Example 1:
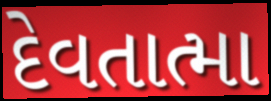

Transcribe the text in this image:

દેવતાત્મા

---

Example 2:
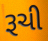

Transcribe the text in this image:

રૂચી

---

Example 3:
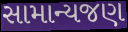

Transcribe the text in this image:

સામાન્યજણ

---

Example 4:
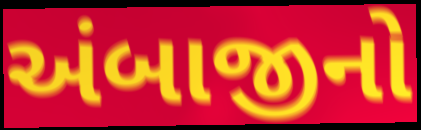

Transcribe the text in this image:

અંબાજીનો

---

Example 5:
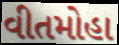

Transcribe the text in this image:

વીતમોહા